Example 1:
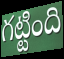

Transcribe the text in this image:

గట్టింది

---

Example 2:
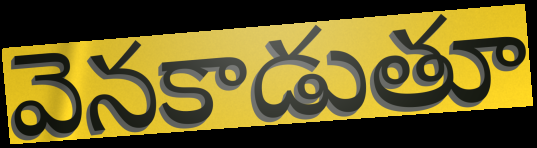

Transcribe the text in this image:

వెనకాడుతూ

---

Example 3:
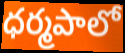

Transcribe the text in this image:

ధర్మపాలో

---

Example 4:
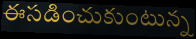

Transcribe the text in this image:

ఈసడించుకుంటున్న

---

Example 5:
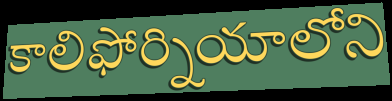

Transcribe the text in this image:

కాలిఫోర్నియాలోని